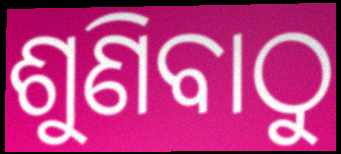
ଶୁଣିବାଠୁ